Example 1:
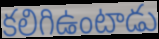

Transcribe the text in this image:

కలిగిఉంటాడు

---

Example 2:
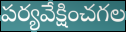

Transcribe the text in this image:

పర్యవేక్షించగల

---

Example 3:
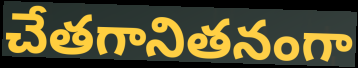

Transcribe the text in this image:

చేతగానితనంగా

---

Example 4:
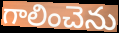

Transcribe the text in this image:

గాలించెను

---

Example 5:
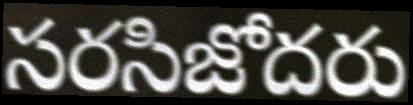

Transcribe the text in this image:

సరసిజోదరు